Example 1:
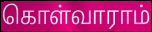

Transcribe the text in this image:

கொள்வாராம்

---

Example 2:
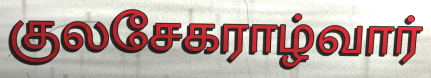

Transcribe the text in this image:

குலசேகராழ்வார்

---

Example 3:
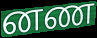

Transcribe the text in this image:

னண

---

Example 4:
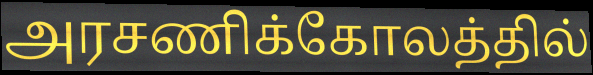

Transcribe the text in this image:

அரசணிக்கோலத்தில்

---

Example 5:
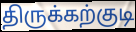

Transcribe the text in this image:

திருக்கற்குடி